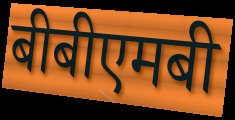
बीबीएमबी